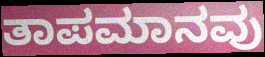
ತಾಪಮಾನವು